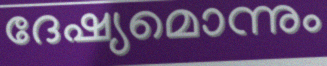
ദേഷ്യമൊന്നും